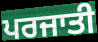
ਪਰਜਾਤੀ